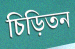
চিড়িতন